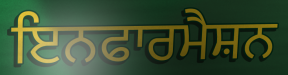
ਇਨਫਾਰਮੈਸ਼ਨ